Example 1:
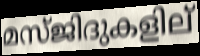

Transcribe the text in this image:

മസ്ജിദുകളില്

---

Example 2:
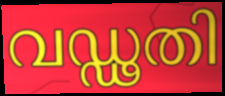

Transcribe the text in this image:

വഡ്ഢതി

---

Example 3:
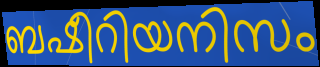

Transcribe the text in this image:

ബഷീറിയനിസം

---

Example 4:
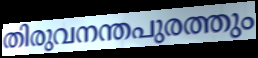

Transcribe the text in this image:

തിരുവനന്തപുരത്തും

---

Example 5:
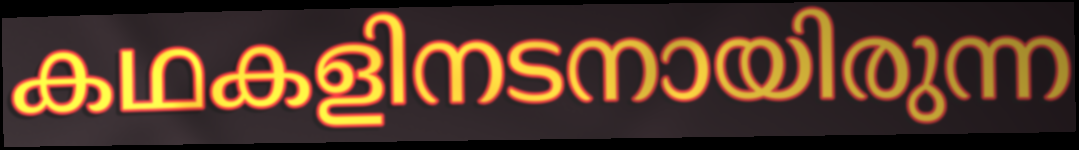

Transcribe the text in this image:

കഥകളിനടനായിരുന്ന